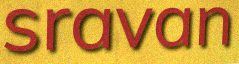
sravan